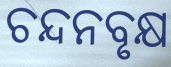
ଚନ୍ଦନବୃକ୍ଷ